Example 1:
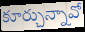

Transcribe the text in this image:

కూర్చున్నావో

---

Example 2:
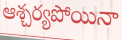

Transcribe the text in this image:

ఆశ్చర్యపోయినా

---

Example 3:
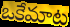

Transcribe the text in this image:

ఒకేమాట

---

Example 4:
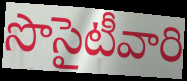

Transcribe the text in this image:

సొసైటీవారి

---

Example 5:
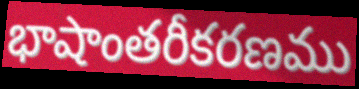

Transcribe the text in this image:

భాషాంతరీకరణము